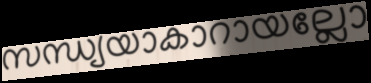
സന്ധ്യയാകാറായല്ലോ